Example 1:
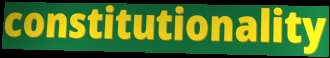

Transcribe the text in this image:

constitutionality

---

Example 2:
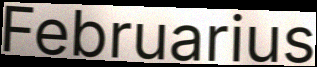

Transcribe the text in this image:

Februarius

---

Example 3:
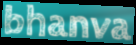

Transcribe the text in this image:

bhanva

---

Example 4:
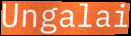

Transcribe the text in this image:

Ungalai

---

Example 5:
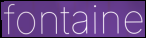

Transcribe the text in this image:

fontaine